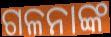
ଗଳନାଙ୍କ